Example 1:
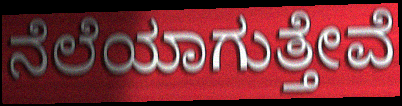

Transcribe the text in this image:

ನೆಲೆಯಾಗುತ್ತೇವೆ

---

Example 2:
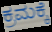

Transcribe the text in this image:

ಕ್ರಮಕ್ಕೆ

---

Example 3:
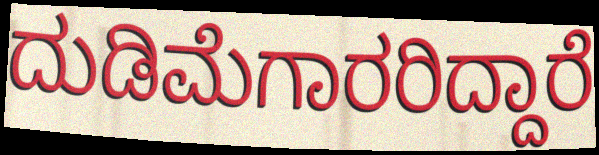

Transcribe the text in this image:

ದುಡಿಮೆಗಾರರಿದ್ದಾರೆ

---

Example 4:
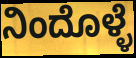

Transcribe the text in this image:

ನಿಂದೊಳ್ಳೆ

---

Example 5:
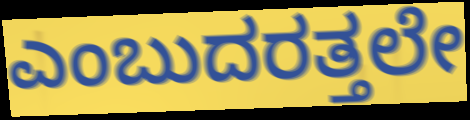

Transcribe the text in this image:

ಎಂಬುದರತ್ತಲೇ